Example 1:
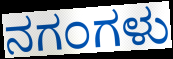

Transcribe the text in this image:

ನಗಂಗಳು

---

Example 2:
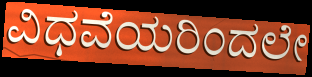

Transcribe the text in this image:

ವಿಧವೆಯರಿಂದಲೇ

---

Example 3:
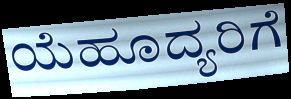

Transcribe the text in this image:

ಯೆಹೂದ್ಯರಿಗೆ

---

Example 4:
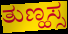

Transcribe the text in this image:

ತುಣ್ಹಸ್ಸ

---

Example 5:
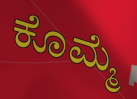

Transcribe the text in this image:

ಕೊಮ್ಮೆ